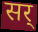
सर्